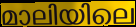
മാലിയിലെ